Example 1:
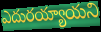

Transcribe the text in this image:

ఎదురయ్యాయని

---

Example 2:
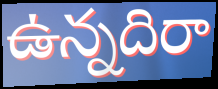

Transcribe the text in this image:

ఉన్నదిరా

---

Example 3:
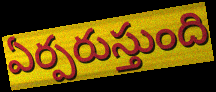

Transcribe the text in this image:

ఏర్పరుస్తుంది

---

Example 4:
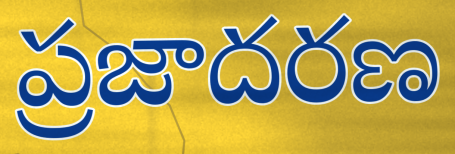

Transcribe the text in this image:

ప్రజాదరణ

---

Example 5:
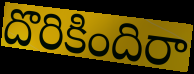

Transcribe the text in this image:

దొరికిందిరా